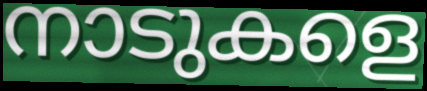
നാടുകളെ